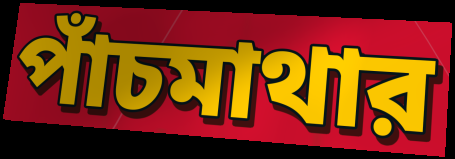
পাঁচমাথার